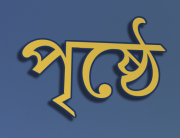
পৃষ্ঠে